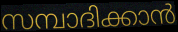
സമ്പാദിക്കാൻ